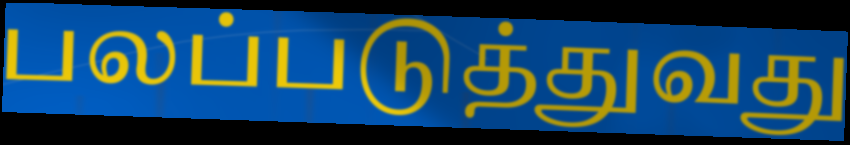
பலப்படுத்துவது